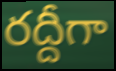
రద్దీగా